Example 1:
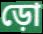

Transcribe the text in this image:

ড়ো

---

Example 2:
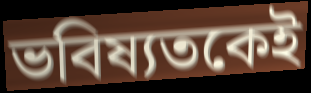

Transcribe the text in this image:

ভবিষ্যতকেই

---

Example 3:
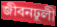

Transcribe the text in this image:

জীবনঢুলী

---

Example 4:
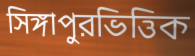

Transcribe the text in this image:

সিঙ্গাপুরভিত্তিক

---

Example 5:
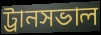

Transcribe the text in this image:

ট্রানসভাল